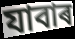
যাবাৰ